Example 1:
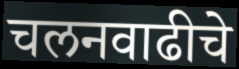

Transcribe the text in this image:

चलनवाढीचे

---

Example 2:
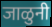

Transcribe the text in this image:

जाळुनी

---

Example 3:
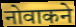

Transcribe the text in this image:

नोवाकने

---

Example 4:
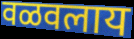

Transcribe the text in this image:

वळवलाय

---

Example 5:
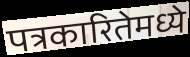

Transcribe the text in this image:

पत्रकारितेमध्ये